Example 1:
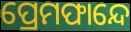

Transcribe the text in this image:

ପ୍ରେମଫାନ୍ଦେ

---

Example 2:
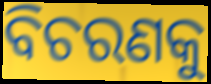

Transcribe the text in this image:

ବିଚରଣକୁ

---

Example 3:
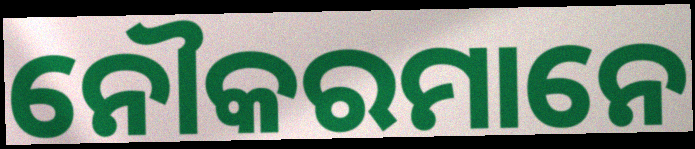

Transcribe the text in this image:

ନୌକରମାନେ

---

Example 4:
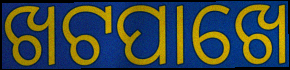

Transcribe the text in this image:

ଖଟପାଖେ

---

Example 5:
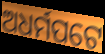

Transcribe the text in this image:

ଅଧର୍ମପଟେ